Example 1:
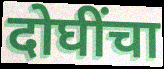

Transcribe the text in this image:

दोघींचा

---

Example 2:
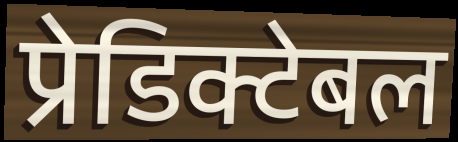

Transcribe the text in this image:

प्रेडिक्टेबल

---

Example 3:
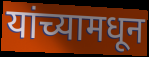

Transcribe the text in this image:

यांच्यामधून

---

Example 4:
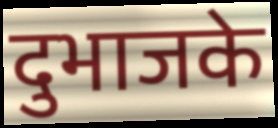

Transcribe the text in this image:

दुभाजके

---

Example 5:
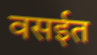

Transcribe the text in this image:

वसईत